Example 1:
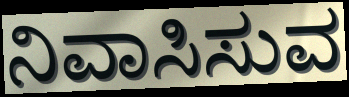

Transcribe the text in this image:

ನಿವಾಸಿಸುವ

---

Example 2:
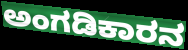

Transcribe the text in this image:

ಅಂಗಡಿಕಾರನ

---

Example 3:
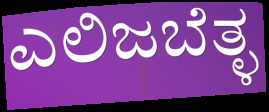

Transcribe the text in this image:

ಎಲಿಜಬೆತ್ಳ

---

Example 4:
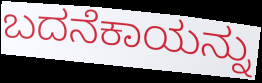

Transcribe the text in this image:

ಬದನೆಕಾಯನ್ನು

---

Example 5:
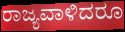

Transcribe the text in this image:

ರಾಜ್ಯವಾಳಿದರೂ